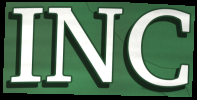
INC